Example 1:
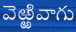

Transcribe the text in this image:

వెఱ్ఱివాగు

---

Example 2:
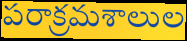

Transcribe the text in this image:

పరాక్రమశాలుల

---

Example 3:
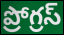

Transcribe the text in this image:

ప్రోగ్రస్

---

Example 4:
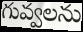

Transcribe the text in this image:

గువ్వలను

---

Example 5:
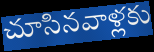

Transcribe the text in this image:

చూసినవాళ్లకు